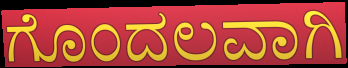
ಗೊಂದಲವಾಗಿ